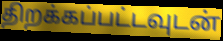
திறக்கப்பட்டவுடன்